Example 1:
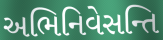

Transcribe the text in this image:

અભિનિવેસન્તિ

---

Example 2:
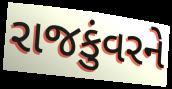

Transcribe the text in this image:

રાજકુંવરને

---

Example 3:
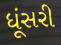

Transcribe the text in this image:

ધૂંસરી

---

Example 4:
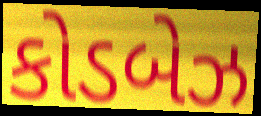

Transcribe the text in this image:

કોડબેઝ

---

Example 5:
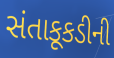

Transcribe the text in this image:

સંતાકૂકડીની